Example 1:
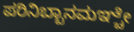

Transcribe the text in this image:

ಪರಿನಿಬ್ಬಾನಮಞ್ಚೇ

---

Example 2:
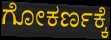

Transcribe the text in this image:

ಗೋಕರ್ಣಕ್ಕೆ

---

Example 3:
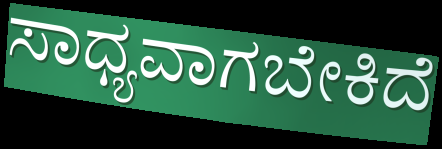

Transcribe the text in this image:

ಸಾಧ್ಯವಾಗಬೇಕಿದೆ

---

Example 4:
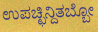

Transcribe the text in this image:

ಉಪಚ್ಛಿನ್ದಿತಬ್ಬೋ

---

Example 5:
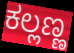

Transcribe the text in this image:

ಕಲ್ಲಣ್ಣ